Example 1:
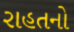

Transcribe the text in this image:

રાહતનો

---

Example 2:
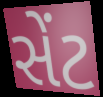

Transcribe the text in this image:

સેંટ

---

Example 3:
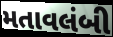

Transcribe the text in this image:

મતાવલંબી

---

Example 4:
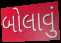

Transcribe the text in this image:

બોલાવું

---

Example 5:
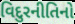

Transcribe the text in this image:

વિદુરનીતિનો